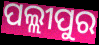
ପଲ୍ଲୀପୁର